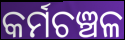
କର୍ମଚଞ୍ଚଳ